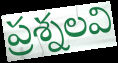
ప్రశ్నలవి